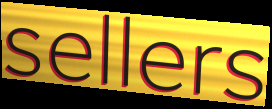
sellers